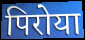
पिरोया